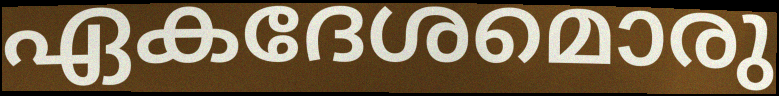
ഏകദേശമൊരു